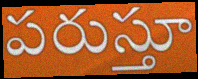
పరుస్తూ